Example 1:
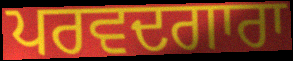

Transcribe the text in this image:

ਪਰਵਦਗਾਰਾ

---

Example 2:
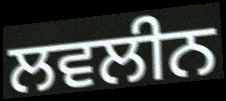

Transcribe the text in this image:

ਲਵਲੀਨ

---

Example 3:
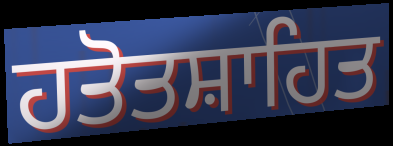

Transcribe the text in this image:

ਹਤੋਤਸ਼ਾਹਿਤ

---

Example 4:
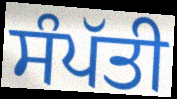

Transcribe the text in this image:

ਸੰਪੱਤੀ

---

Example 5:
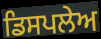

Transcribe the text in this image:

ਡਿਸਪਲੇਅ